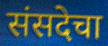
संसदेचा